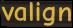
valign